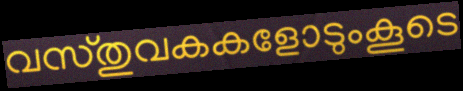
വസ്തുവകകളോടുംകൂടെ